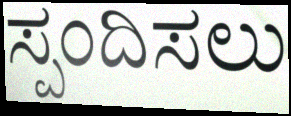
ಸ್ಪಂದಿಸಲು